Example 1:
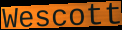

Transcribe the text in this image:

Wescott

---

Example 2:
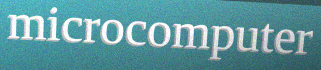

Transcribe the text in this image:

microcomputer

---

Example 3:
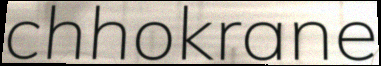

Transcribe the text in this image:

chhokrane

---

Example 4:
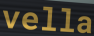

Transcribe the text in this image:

vella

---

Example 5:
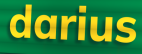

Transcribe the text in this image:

darius